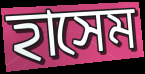
হাসেম